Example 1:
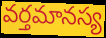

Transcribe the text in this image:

వర్తమానస్య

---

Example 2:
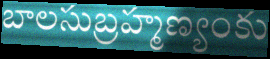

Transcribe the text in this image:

బాలసుబ్రహ్మణ్యంకు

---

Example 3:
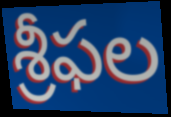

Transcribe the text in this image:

శ్రీఫల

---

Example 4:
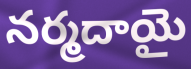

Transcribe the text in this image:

నర్మదాయై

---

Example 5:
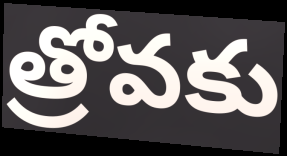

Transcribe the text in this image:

త్రోవకు